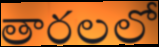
తారలలో